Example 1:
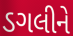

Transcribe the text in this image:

ડગલીને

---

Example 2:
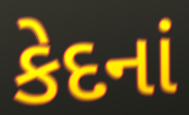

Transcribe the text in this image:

કેદનાં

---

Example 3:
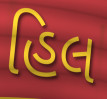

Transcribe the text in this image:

હિલ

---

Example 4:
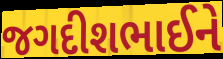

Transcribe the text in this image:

જગદીશભાઈને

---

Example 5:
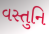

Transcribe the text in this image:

વસ્તુનિ